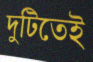
দুটিতেই